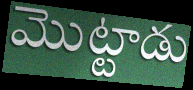
మొట్టాడు